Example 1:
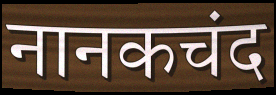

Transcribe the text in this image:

नानकचंद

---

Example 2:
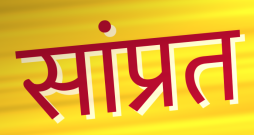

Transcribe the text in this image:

सांप्रत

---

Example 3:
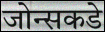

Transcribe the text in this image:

जोन्सकडे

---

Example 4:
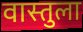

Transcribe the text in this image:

वास्तुला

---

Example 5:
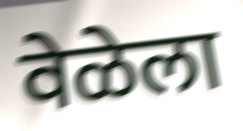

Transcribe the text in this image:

वेळेला